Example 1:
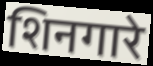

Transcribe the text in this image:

शिनगारे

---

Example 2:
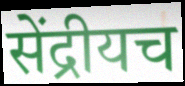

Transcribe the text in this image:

सेंद्रीयच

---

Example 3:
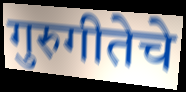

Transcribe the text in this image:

गुरुगीतेचे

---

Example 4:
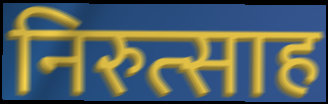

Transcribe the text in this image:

निरुत्साह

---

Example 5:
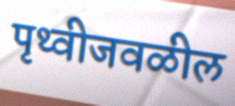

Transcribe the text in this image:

पृथ्वीजवळील